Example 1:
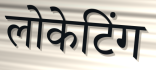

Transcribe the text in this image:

लोकेटिंग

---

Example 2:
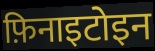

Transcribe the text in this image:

फ़िनाइटोइन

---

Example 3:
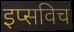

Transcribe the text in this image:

इप्सविच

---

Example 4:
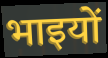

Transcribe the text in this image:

भाइयों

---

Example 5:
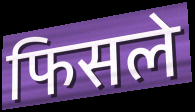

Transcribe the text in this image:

फिसले